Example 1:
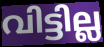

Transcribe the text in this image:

വിട്ടില്ല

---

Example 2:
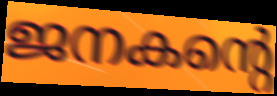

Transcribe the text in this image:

ജനകന്റെ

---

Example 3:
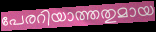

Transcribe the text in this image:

പേരറിയാത്തതുമായ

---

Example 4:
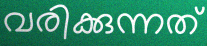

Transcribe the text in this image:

വരിക്കുന്നത്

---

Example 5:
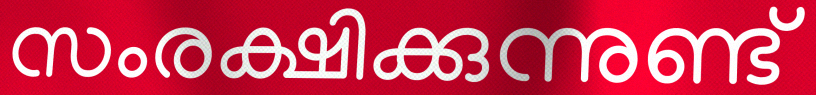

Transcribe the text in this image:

സംരക്ഷിക്കുന്നുണ്ട്